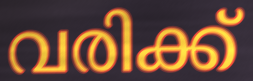
വരിക്ക്